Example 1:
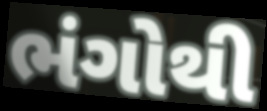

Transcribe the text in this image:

ભંગોથી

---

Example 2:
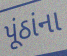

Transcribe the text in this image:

પૂંઠાંના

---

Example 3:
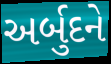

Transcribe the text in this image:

અર્બુદને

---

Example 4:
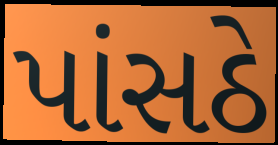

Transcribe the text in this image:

પાંસઠે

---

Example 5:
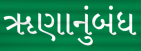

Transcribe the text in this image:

ૠણાનુંબંધ